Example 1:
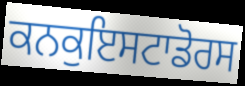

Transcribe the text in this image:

ਕਨਕੁਇਸਟਾਡੋਰਸ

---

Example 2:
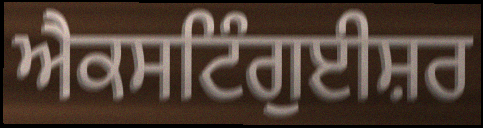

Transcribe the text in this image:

ਐਕਸਟਿੰਗੁਈਸ਼ਰ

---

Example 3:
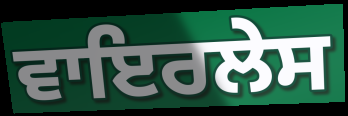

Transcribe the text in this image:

ਵਾਇਰਲੇਸ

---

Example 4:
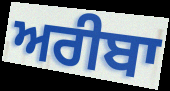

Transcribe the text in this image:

ਅਰੀਬਾ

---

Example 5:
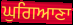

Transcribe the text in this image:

ਘੁਗਿਆਣਾ